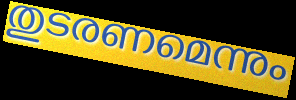
തുടരണമെന്നും